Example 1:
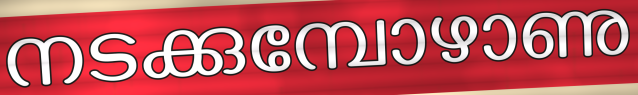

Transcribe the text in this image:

നടക്കുമ്പോഴാണു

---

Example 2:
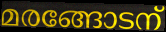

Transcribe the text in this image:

മരങ്ങോടന്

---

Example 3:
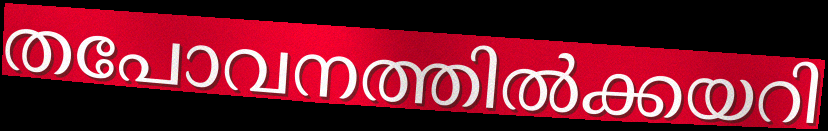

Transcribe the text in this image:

തപോവനത്തിൽക്കയറി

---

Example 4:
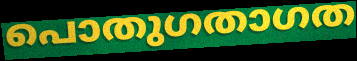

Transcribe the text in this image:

പൊതുഗതാഗത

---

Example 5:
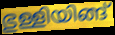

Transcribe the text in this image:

ഭുള്ളിയിങ്ങ്